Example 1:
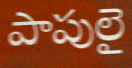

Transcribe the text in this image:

పాపులై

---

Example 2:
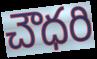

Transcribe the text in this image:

చౌధరి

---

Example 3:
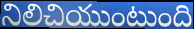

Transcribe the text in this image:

నిలిచియుంటుంది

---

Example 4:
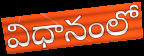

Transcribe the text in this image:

విధానంలో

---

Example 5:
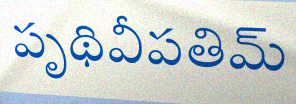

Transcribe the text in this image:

పృథివీపతిమ్